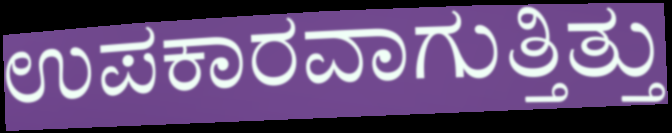
ಉಪಕಾರವಾಗುತ್ತಿತ್ತು